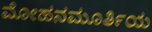
ಮೋಹನಮೂರ್ತಿಯ